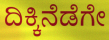
ದಿಕ್ಕಿನೆಡೆಗೇ